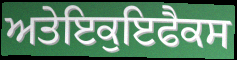
ਅਤੇਇਕੁਇਫੈਕਸ